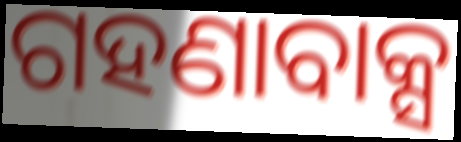
ଗହଣାବାକ୍ସ